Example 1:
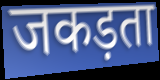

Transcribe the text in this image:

जकड़ता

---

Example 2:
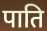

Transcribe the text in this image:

पाति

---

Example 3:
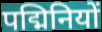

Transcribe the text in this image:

पद्मिनियों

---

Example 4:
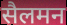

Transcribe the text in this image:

सैलमन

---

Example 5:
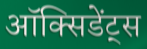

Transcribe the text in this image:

ऑक्सिडेंट्स